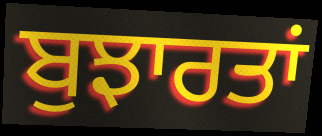
ਬੁਝਾਰਤਾਂ